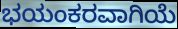
ಭಯಂಕರವಾಗಿಯೆ